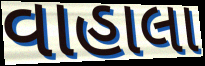
વાહાલા